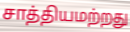
சாத்தியமற்றது